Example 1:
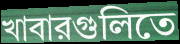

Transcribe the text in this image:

খাবারগুলিতে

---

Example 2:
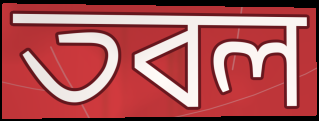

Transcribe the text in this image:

তবল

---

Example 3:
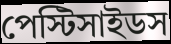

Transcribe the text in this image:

পেস্টিসাইডস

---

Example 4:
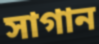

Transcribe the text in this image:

সাগান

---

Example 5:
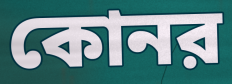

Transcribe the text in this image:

কোনর